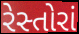
રેસ્તોરાં